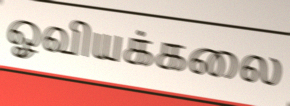
ஓவியக்கலை